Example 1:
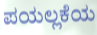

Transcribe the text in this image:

ಪಯಲ್ಲಕೆಯ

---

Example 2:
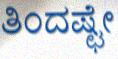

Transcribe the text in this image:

ತಿಂದಷ್ಟೇ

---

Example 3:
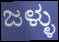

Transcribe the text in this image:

ಜಳ್ಳು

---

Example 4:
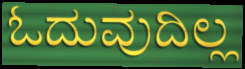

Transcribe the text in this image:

ಓದುವುದಿಲ್ಲ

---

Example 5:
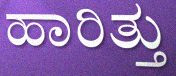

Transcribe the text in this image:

ಹಾರಿತ್ತು